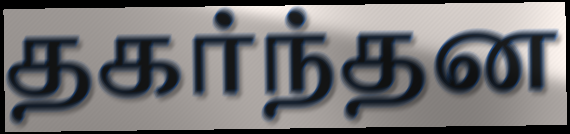
தகர்ந்தன